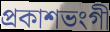
প্ৰকাশভংগী